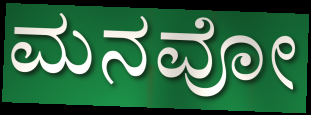
ಮನವೋ